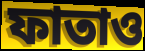
ফাতাও